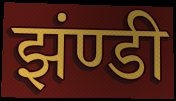
झंण्डी